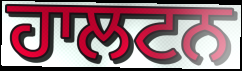
ਹਾਲਟਨ